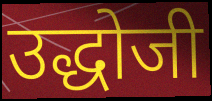
उद्धोजी